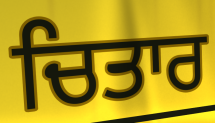
ਚਿਤਾਰ